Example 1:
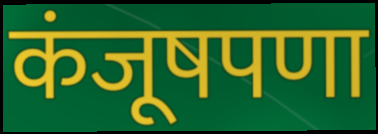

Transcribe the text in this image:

कंजूषपणा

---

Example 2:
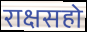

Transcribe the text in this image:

राक्षसहो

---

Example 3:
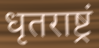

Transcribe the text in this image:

धृतराष्ट्रं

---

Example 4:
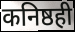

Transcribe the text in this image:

कनिष्ठही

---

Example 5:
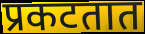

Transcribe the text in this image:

प्रकटतात